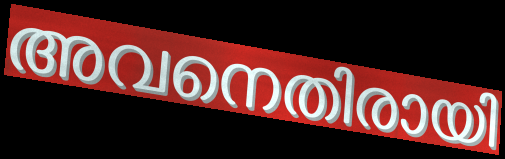
അവനെതിരായി